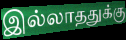
இல்லாததுக்கு